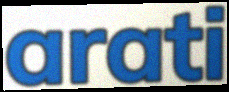
arati